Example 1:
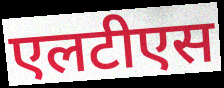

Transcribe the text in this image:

एलटीएस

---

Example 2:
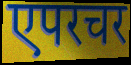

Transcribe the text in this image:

एपरचर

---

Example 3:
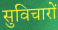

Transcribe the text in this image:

सुविचारों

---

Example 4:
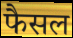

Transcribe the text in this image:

फैसल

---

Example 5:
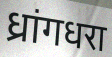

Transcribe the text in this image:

ध्रांगधरा